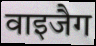
वाइजैग